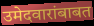
उमेदवारांबाबत